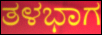
ತಳಭಾಗ